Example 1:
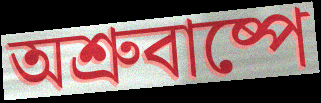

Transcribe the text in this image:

অশ্রুবাষ্পে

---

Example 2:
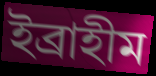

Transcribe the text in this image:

ইব্রাহীম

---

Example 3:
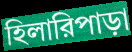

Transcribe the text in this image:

হিলারিপাড়া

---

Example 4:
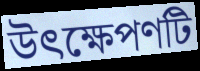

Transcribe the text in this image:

উৎক্ষেপণটি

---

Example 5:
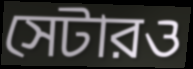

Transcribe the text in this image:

সেটারও